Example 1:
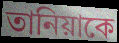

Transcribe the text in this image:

তানিয়াকে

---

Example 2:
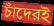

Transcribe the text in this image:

চাঁদেরই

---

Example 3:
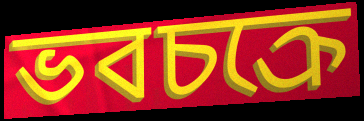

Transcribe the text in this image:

ভবচক্রে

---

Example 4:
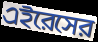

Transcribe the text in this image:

এইরেসের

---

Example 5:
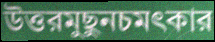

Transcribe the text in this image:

উত্তরমুছুনচমৎকার